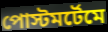
পোস্টমর্টেমে